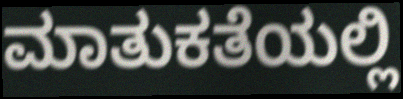
ಮಾತುಕತೆಯಲ್ಲಿ